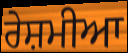
ਰੇਸ਼ਮੀਆ